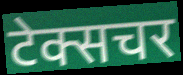
टेक्सचर